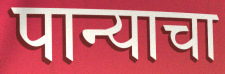
पान्याचा